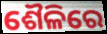
ଶୈଳିରେ